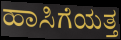
ಹಾಸಿಗೆಯತ್ತ